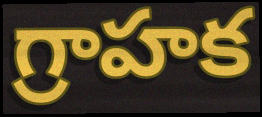
గ్రాహక